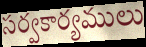
సర్వకార్యములు